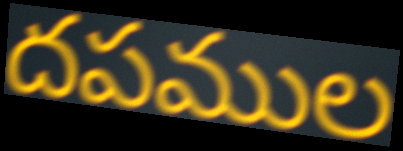
దపముల